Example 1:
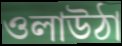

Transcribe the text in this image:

ওলাউঠা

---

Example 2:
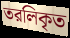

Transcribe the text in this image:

তরলিকৃত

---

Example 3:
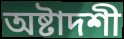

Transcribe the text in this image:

অষ্টাদশী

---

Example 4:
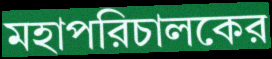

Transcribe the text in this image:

মহাপরিচালকের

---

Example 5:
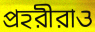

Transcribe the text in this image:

প্রহরীরাও